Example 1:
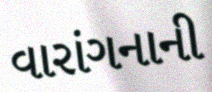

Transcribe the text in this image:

વારાંગનાની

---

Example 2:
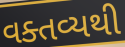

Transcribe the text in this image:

વક્તવ્યથી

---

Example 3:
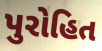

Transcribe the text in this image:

પુરોહિત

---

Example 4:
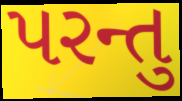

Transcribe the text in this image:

પરન્તુ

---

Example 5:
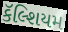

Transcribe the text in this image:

કૅલ્શિયમ